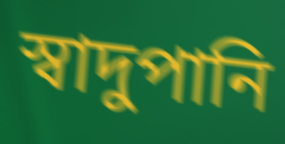
স্বাদুপানি